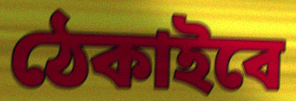
ঠেকাইবে